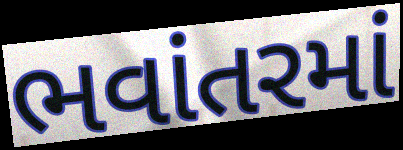
ભવાંતરમાં